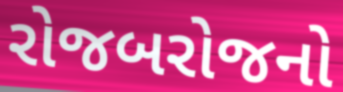
રોજબરોજનો